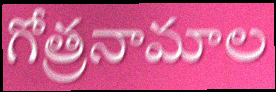
గోత్రనామాల